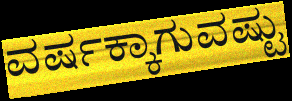
ವರ್ಷಕ್ಕಾಗುವಷ್ಟು